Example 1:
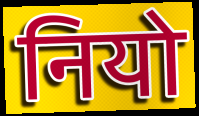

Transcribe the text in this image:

नियो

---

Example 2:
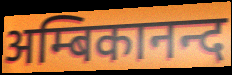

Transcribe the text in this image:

अम्बिकानन्द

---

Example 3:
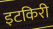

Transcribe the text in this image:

इटकिरी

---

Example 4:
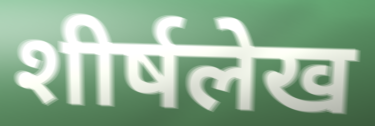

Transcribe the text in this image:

शीर्षलेख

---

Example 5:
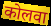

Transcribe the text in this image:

कोलवा